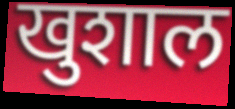
खुशाल